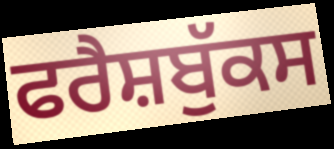
ਫਰੈਸ਼ਬੁੱਕਸ